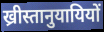
ख्रीस्तानुयायियों